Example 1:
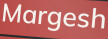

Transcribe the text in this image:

Margesh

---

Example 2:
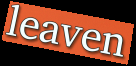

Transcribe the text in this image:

leaven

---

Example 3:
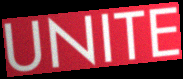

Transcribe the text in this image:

UNITE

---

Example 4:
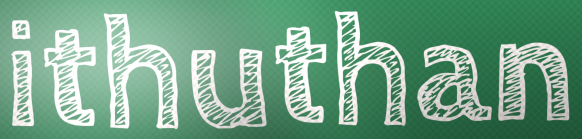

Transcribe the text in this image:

ithuthan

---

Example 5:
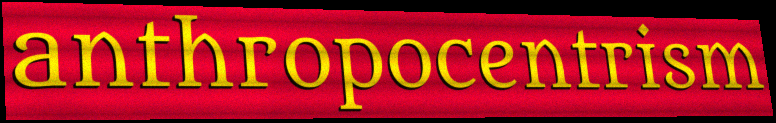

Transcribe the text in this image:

anthropocentrism